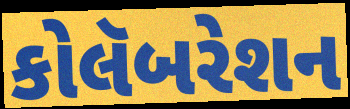
કોલૅબરેશન